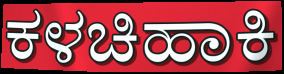
ಕಳಚಿಹಾಕಿ